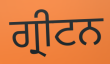
ਗ੍ਰੀਟਨ